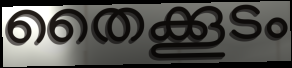
തൈക്കൂടം